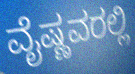
ವೈಷ್ಣವರಲ್ಲಿ